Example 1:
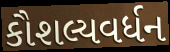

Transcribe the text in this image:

કૌશલ્યવર્ધન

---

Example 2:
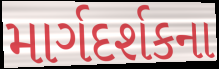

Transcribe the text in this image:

માર્ગદર્શકના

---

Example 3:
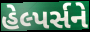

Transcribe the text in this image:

હેલ્પર્સને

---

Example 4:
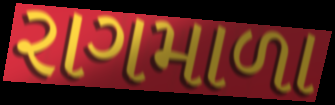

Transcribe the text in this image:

રાગમાળા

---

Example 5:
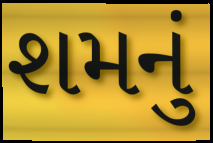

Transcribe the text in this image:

શમનું